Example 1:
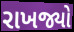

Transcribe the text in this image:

રાખજ્યો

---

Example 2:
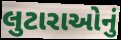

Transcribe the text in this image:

લુટારાઓનું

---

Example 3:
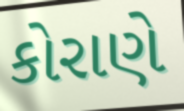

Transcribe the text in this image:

કોરાણે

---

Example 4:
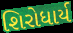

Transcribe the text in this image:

શિરોધાર્ય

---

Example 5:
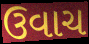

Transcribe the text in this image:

ઉવાચ